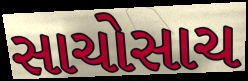
સાચોસાચ